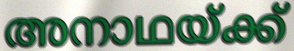
അനാഥയ്ക്ക്